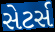
સેટર્સ